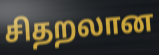
சிதறலான